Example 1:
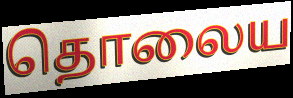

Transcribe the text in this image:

தொலைய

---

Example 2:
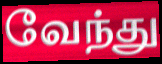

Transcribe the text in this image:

வேந்து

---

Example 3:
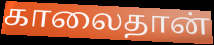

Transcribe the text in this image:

காலைதான்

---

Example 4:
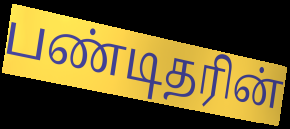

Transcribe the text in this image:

பண்டிதரின்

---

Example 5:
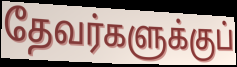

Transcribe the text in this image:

தேவர்களுக்குப்